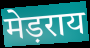
मेड़राय